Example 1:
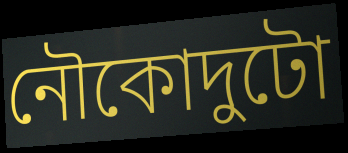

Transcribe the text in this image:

নৌকোদুটো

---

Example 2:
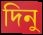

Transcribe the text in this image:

দিনু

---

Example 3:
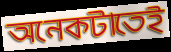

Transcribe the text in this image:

অনেকটাতেই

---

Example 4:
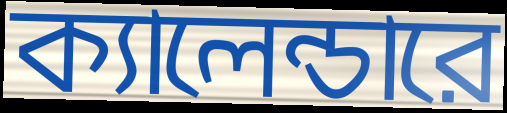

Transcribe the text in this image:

ক্যালেন্ডারে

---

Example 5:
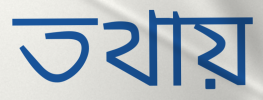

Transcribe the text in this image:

তথায়